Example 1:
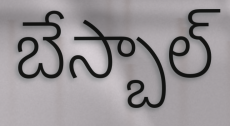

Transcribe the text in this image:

బేస్బాల్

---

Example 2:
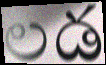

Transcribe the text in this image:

లడ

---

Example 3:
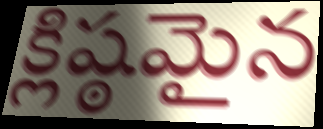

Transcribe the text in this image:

క్లిష్ఠమైన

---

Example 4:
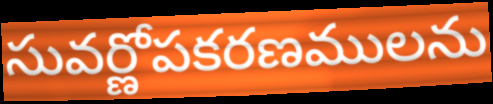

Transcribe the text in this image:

సువర్ణోపకరణములను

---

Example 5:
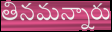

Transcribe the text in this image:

తినమన్నారు